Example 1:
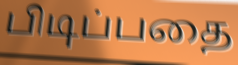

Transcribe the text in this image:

பிடிப்பதை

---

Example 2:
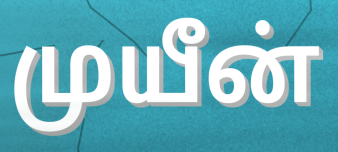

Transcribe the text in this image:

முயீன்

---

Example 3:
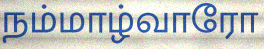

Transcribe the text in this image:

நம்மாழ்வாரோ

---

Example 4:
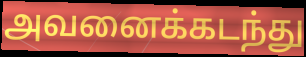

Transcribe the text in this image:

அவனைக்கடந்து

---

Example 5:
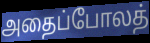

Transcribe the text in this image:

அதைப்போலத்